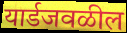
यार्डजवळील